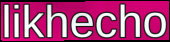
likhecho